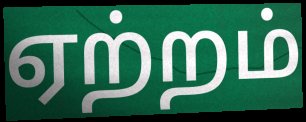
ஏற்றம்